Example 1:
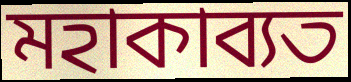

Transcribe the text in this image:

মহাকাব্যত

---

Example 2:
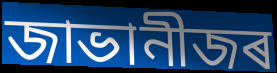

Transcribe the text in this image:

জাভানীজৰ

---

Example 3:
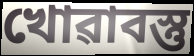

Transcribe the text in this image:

খোৱাবস্তু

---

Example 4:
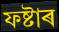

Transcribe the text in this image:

ফষ্টাৰ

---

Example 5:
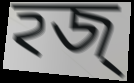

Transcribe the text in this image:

হজ্